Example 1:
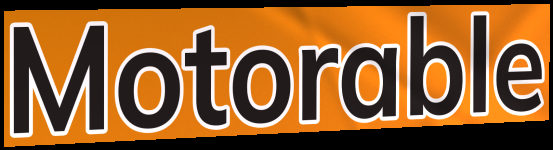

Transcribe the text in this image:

Motorable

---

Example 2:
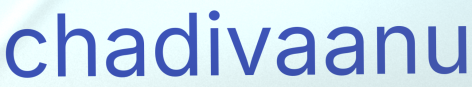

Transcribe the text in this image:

chadivaanu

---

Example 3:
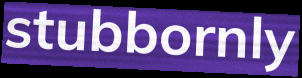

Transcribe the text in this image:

stubbornly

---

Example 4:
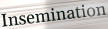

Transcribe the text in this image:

Insemination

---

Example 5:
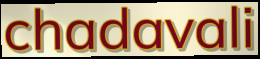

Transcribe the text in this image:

chadavali